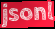
jsonl